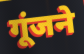
गूंजने